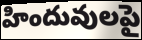
హిందువులపై